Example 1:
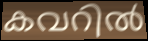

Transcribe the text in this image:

കവറിൽ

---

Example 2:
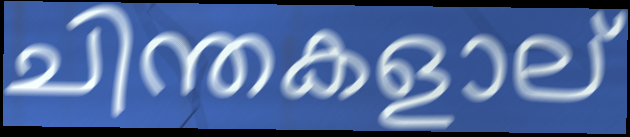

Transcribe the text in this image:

ചിന്തകളാല്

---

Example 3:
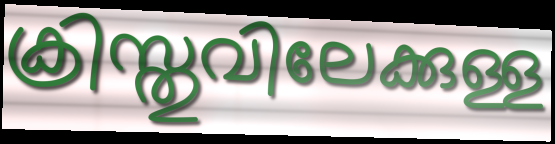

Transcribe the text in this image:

ക്രിസ്തുവിലേക്കുള്ള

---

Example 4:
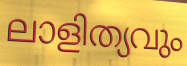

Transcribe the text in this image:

ലാളിത്യവും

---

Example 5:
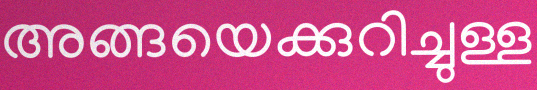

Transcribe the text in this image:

അങ്ങയെക്കുറിച്ചുള്ള